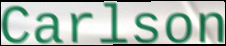
Carlson